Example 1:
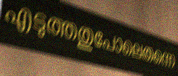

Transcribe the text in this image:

എടുത്തതുപോലെതന്നെ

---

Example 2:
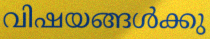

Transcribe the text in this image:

വിഷയങ്ങൾക്കു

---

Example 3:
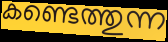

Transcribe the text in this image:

കണ്ടെത്തുന്ന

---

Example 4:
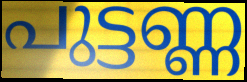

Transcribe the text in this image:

പുട്ടണ്ണ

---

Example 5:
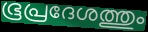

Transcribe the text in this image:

ഭൂപ്രദേശത്തും